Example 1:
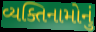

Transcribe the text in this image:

વ્યક્તિનામોનું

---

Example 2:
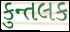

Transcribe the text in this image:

કુન્તલક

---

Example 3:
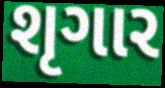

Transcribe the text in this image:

શૃગાર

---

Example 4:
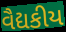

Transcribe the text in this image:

વૈદ્યકીય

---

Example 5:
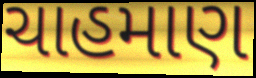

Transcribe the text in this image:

ચાહમાણ